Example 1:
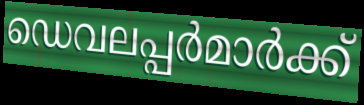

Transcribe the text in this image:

ഡെവലപ്പർമാർക്ക്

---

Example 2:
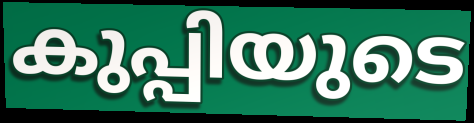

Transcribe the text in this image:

കുപ്പിയുടെ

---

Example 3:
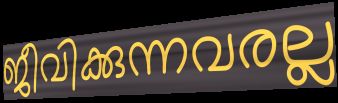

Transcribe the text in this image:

ജീവിക്കുന്നവരല്ല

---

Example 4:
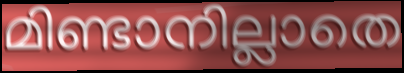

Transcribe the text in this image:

മിണ്ടാനില്ലാതെ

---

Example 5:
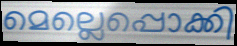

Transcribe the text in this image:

മെല്ലെപ്പൊക്കി